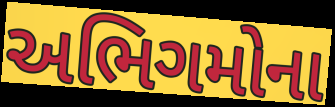
અભિગમોના